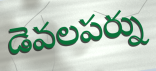
డెవలపర్ను